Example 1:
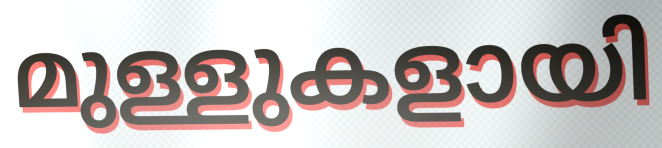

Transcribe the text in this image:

മുള്ളുകളായി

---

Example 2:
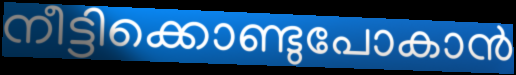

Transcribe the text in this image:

നീട്ടിക്കൊണ്ടുപോകാൻ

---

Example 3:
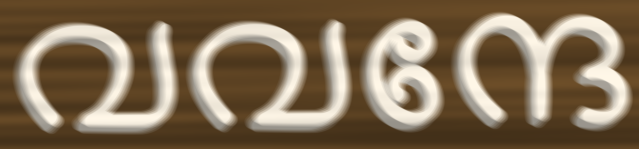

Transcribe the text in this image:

വവന്ദേ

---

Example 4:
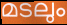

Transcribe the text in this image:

മടലും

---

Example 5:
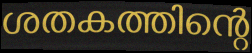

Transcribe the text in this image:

ശതകത്തിന്റെ